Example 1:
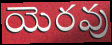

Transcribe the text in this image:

యెరవు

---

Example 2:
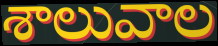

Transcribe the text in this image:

శాలువాల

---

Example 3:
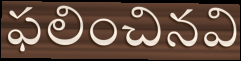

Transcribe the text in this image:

ఫలించినవి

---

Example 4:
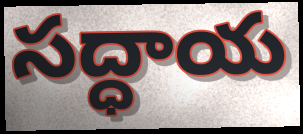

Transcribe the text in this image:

సద్ధాయ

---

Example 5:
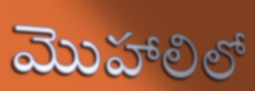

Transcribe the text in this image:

మొహాలిలో